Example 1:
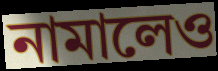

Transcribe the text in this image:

নামালেও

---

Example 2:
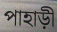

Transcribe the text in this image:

পাহাড়ী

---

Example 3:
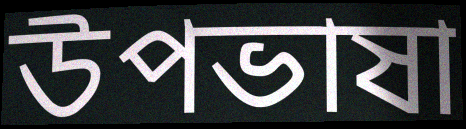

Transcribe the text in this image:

উপভাষা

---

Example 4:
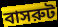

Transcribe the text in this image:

বাসরুট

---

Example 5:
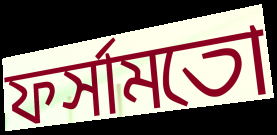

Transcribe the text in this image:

ফর্সামতো